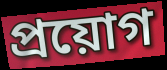
প্ৰয়োগ